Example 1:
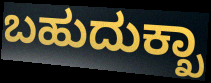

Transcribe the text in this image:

ಬಹುದುಕ್ಖಾ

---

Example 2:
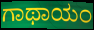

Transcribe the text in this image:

ಗಾಥಾಯಂ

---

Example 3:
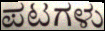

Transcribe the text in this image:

ಪಟಗಳು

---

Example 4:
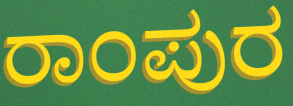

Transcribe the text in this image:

ರಾಂಪುರ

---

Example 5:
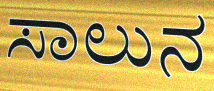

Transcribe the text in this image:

ಸಾಲುನ